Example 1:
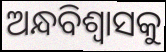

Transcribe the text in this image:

ଅନ୍ଧବିଶ୍ୱାସକୁ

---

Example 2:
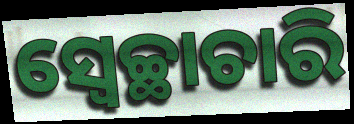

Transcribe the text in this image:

ସ୍ଵେଚ୍ଛାଚାରି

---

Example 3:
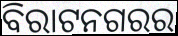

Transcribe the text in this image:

ବିରାଟନଗରର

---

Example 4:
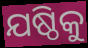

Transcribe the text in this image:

ଯଷ୍ଠିକୁ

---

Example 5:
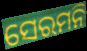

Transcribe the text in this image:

ସେରମନି